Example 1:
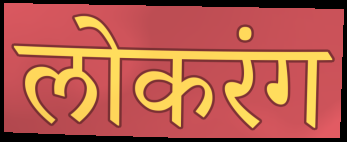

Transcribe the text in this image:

लोकरंग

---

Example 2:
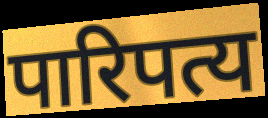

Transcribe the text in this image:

पारिपत्य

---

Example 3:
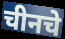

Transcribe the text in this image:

चीनचे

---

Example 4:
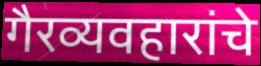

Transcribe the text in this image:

गैरव्यवहारांचे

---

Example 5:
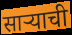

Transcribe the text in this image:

सार्‍याची